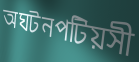
অঘটনপটিয়সী